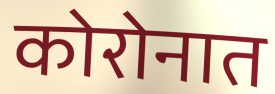
कोरोनात